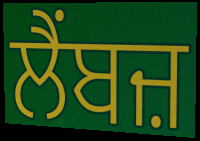
ਲੈਂਬਜ਼